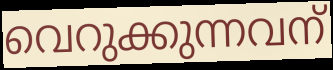
വെറുക്കുന്നവന്